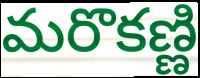
మరొకణ్ణి